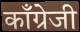
काँग्रेजी